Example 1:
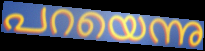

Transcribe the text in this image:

പറയെന്നു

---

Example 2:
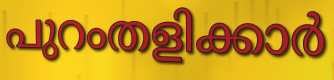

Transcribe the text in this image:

പുറംതളിക്കാർ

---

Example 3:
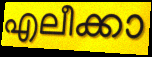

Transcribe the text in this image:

എലീക്കാ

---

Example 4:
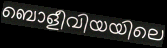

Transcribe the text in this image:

ബൊളീവിയയിലെ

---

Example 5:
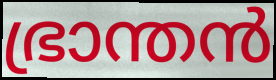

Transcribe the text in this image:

ഭ്രാന്തൻ